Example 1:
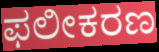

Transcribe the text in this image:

ಫಲೀಕರಣ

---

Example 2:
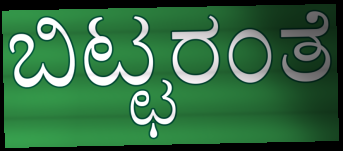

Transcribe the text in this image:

ಬಿಟ್ಟರಂತೆ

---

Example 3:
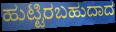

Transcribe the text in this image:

ಹುಟ್ಟಿರಬಹುದಾದ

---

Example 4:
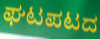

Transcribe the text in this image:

ಘಟಪಟದ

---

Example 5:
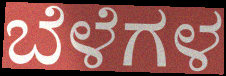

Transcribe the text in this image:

ಬೆಳೆಗಳ